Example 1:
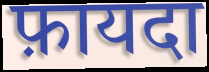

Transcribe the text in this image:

फ़ायदा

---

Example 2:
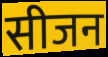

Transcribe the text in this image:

सीजन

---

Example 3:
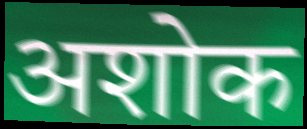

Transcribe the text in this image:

अशोक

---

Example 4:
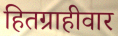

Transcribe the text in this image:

हितग्राहीवार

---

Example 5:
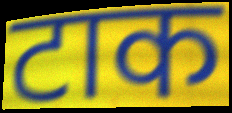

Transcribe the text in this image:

टाक